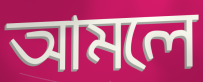
আমলে